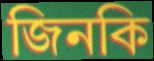
জিনকি